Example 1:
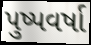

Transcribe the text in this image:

પુષ્પવર્ષા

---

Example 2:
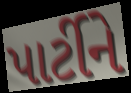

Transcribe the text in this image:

પાર્ટીને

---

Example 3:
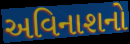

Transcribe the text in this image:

અવિનાશનો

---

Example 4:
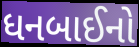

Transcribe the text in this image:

ધનબાઈનો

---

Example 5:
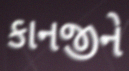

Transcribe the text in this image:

કાનજીને